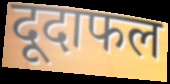
दूदाफल